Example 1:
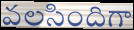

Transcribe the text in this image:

వలసిందిగా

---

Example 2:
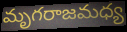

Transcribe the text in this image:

మృగరాజమధ్య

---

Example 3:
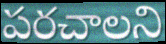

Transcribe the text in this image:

పరచాలని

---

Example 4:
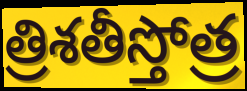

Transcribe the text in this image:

త్రిశతీస్తోత్ర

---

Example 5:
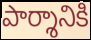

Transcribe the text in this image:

పార్శానికి